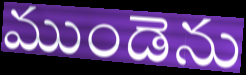
ముండెను